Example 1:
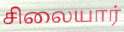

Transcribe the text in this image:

சிலையார்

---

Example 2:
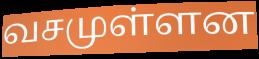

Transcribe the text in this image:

வசமுள்ளன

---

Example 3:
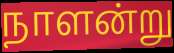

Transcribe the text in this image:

நாளன்று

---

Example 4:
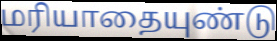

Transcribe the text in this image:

மரியாதையுண்டு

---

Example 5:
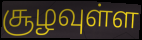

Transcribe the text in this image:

சூழவுள்ள